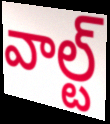
వాల్ట్